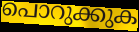
പൊറുക്കുക